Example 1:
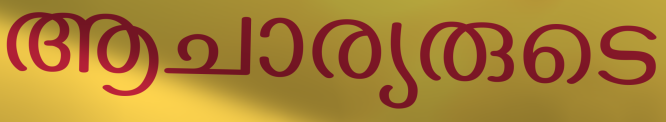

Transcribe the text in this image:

ആചാര്യരുടെ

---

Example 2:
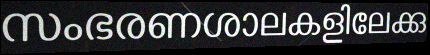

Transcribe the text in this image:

സംഭരണശാലകളിലേക്കു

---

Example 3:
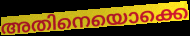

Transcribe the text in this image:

അതിനെയൊക്കെ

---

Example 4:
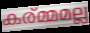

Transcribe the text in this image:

കര്മ്മമല്ല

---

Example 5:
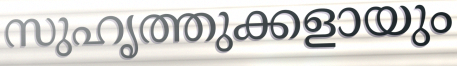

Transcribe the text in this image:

സുഹൃത്തുക്കളായും